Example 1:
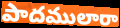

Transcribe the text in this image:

పాదములారా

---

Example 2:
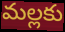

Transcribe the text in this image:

మల్లకు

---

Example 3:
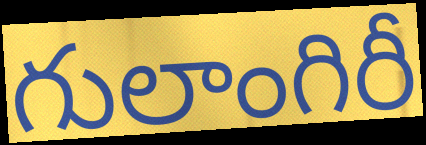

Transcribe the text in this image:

గులాంగిరీ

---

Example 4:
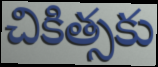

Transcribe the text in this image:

చికిత్సకు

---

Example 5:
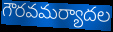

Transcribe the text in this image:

గౌరవమర్యాదల